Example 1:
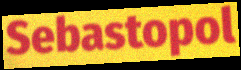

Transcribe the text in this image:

Sebastopol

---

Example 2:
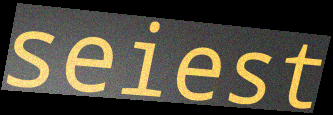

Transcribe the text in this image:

seiest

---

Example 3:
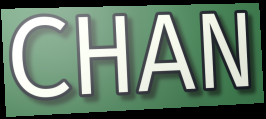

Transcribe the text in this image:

CHAN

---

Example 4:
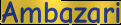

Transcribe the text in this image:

Ambazari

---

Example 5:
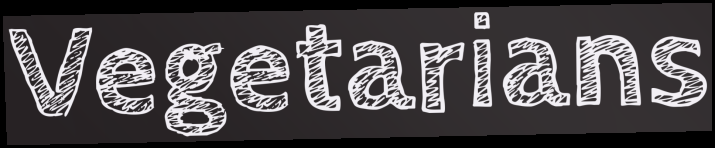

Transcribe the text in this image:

Vegetarians